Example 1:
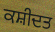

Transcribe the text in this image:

ਕਸ਼ੀਦਤ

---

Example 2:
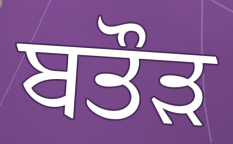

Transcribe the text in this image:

ਬਤੌੜ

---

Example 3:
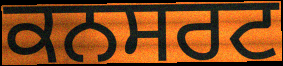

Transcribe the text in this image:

ਕਨਸਰਟ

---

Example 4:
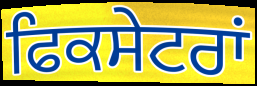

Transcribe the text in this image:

ਫਿਕਸੇਟਰਾਂ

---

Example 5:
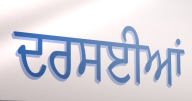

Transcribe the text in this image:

ਦਰਸਈਆਂ